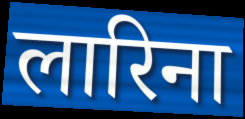
लारिना